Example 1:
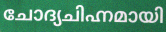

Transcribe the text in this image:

ചോദ്യചിഹ്നമായി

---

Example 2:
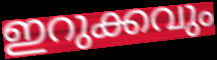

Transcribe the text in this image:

ഇറുക്കവും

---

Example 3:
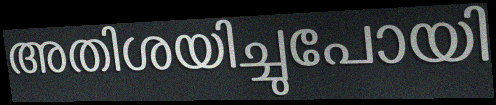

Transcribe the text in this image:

അതിശയിച്ചുപോയി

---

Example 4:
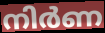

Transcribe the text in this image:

നിർണ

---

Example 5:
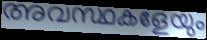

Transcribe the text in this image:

അവസ്ഥകളേയും